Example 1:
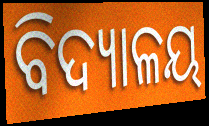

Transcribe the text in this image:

ବିଦ୍ଯାଳୟ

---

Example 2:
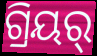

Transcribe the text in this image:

ଗ୍ରିୟର୍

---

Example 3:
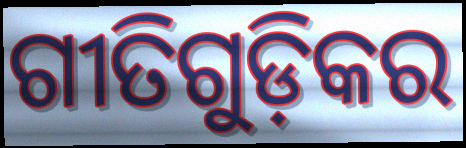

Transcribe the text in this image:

ଗୀତିଗୁଡ଼ିକର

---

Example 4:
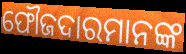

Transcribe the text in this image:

ଫୌଜଦାରମାନଙ୍କ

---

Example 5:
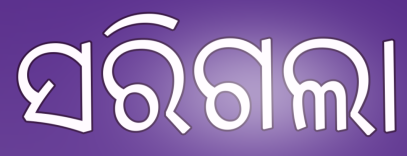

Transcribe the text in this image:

ସରିଗଲା